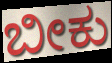
ಬೀಕು